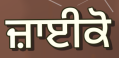
ਜ਼ਾਈਕੋ